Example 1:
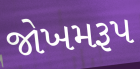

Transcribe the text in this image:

જોખમરૂપ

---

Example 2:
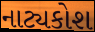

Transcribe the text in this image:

નાટ્યકોશ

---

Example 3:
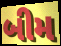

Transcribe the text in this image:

બીમ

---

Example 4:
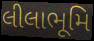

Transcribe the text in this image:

લીલાભૂમિ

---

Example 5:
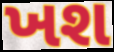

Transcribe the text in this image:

ખશ